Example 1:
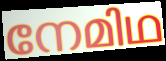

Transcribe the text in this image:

നേമിഥ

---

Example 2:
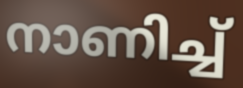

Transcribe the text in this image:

നാണിച്ച്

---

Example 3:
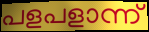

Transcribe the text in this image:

പളപളാന്ന്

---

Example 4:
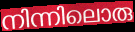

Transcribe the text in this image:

നിന്നിലൊരു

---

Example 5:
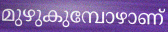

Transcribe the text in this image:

മുഴുകുമ്പോഴാണ്